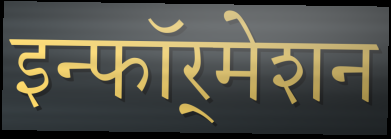
इन्फॉर्मेशन